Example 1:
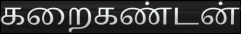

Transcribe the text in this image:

கறைகண்டன்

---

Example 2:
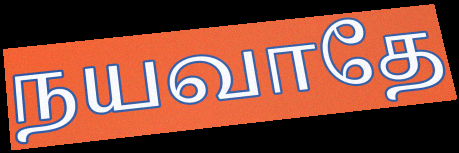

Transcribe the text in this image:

நயவாதே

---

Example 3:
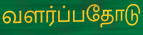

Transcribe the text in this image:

வளர்ப்பதோடு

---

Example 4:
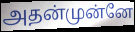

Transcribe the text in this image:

அதன்முன்னே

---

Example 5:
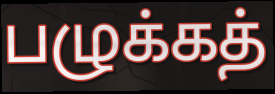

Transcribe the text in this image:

பழுக்கத்